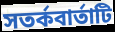
সতর্কবার্তাটি